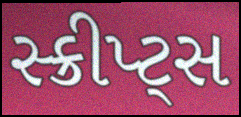
સ્ક્રીપ્ટ્સ